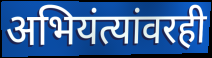
अभियंत्यांवरही